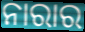
ନାରାର